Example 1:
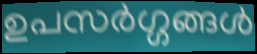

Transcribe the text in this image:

ഉപസർഗ്ഗങ്ങൾ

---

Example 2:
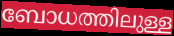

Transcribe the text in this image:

ബോധത്തിലുള്ള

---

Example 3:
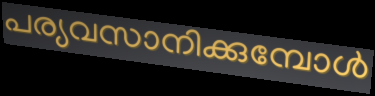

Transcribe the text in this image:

പര്യവസാനിക്കുമ്പോൾ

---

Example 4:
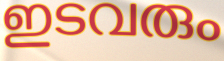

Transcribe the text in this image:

ഇടവരും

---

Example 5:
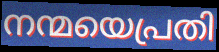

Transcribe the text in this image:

നന്മയെപ്രതി